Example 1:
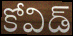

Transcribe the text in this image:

కోవిడ్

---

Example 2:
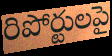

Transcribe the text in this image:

రిపోర్టులపై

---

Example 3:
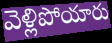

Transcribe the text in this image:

వెళ్లిపోయారు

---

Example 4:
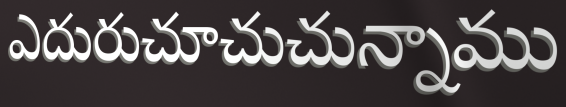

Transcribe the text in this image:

ఎదురుచూచుచున్నాము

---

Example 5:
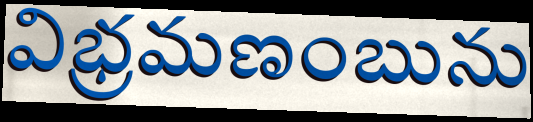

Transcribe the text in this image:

విభ్రమణంబును